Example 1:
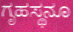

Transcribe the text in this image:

ಗೃಹಸ್ಥನೂ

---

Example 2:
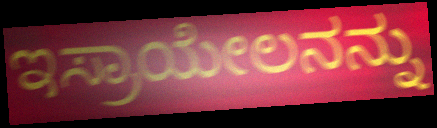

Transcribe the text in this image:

ಇಸ್ರಾಯೇಲನನ್ನು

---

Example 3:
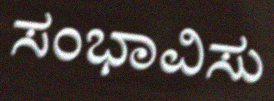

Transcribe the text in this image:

ಸಂಭಾವಿಸು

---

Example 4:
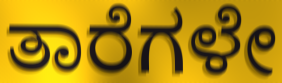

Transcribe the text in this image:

ತಾರೆಗಳೇ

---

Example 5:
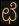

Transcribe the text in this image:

ಛೆ